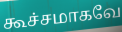
கூச்சமாகவே